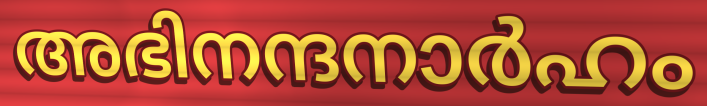
അഭിനന്ദനാർഹം